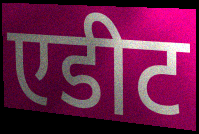
एडीट